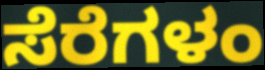
ಸೆರೆಗಳಂ